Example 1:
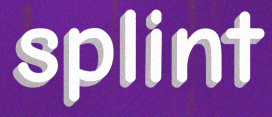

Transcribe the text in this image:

splint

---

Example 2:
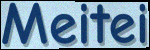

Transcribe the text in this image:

Meitei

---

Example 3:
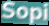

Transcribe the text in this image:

Sopi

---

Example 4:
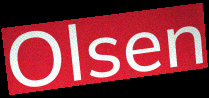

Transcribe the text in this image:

Olsen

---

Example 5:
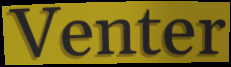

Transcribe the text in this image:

Venter